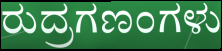
ರುದ್ರಗಣಂಗಳು